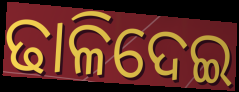
ଢାଳିଦେଇ